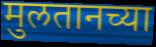
मुलतानच्या